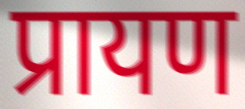
प्रायण